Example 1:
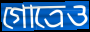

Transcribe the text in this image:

গোত্রেও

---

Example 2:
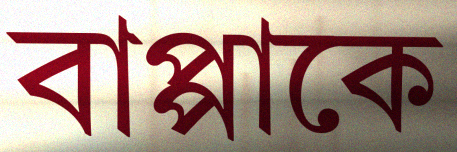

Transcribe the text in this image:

বাপ্পাকে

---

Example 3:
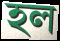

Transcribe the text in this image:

হল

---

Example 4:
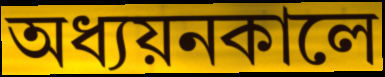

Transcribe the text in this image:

অধ্যয়নকালে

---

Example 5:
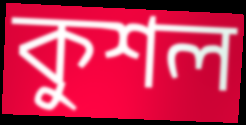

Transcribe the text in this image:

কুশল